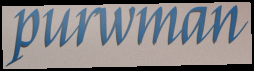
purwman